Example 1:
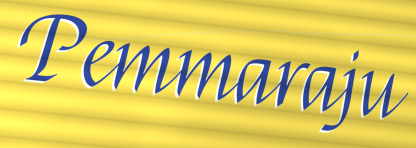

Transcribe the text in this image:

Pemmaraju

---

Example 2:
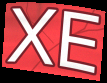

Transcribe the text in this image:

XE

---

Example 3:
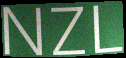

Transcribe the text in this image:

NZL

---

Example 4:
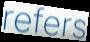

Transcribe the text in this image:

refers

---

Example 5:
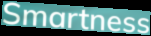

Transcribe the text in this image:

Smartness